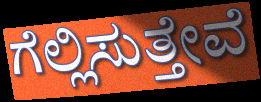
ಗೆಲ್ಲಿಸುತ್ತೇವೆ